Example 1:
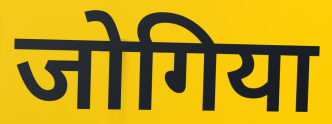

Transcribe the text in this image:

जोगिया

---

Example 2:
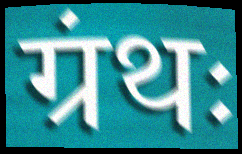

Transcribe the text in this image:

ग्रंथः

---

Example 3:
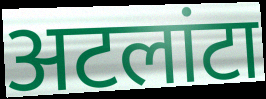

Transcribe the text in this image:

अटलांटा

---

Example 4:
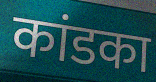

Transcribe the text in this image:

कांडका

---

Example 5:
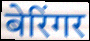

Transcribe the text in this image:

बेरिंगर